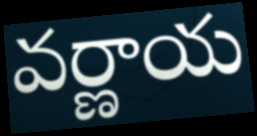
వర్ణాయ